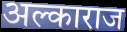
अल्काराज